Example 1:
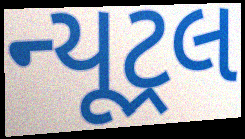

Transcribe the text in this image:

ન્યૂટ્રલ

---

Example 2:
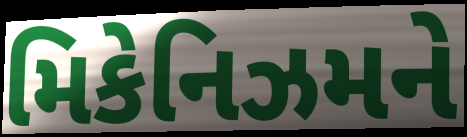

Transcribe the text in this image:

મિકેનિઝમને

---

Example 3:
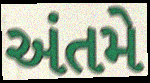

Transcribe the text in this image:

અંતમે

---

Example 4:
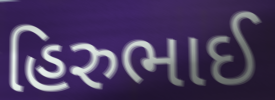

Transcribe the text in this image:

હિરુભાઈ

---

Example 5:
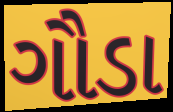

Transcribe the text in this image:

ગૌડા